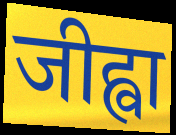
जीह्वा